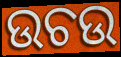
ଉଚଉ